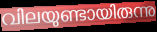
വിലയുണ്ടായിരുന്നു